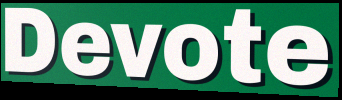
Devote